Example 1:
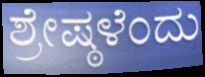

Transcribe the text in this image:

ಶ್ರೇಷ್ಠಳೆಂದು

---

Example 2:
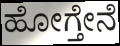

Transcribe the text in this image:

ಹೋಗ್ತೇನೆ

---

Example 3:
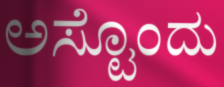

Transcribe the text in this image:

ಅಸ್ಟೊಂದು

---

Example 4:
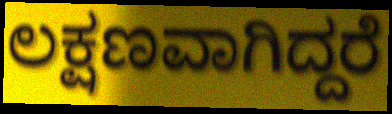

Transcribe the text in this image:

ಲಕ್ಷಣವಾಗಿದ್ದರೆ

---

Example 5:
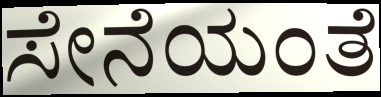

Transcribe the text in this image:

ಸೇನೆಯಂತೆ